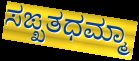
ಸಙ್ಖತಧಮ್ಮಾ